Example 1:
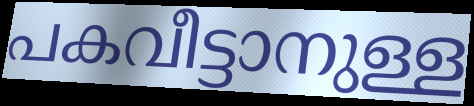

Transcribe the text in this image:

പകവീട്ടാനുള്ള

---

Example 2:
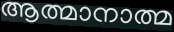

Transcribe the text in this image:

ആത്മാനാത്മ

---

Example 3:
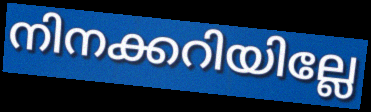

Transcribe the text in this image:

നിനക്കറിയില്ലേ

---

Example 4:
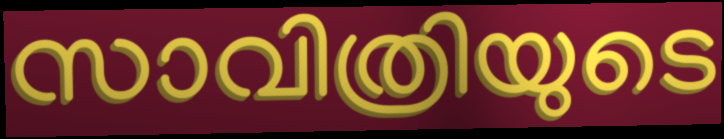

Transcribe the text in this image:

സാവിത്രിയുടെ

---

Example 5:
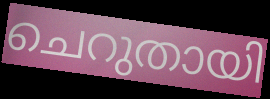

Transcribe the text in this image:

ചെറുതായി